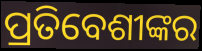
ପ୍ରତିବେଶୀଙ୍କର